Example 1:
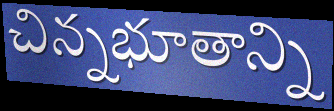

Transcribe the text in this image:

చిన్నభూతాన్ని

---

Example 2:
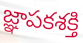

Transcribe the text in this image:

జ్ఞాపకశక్తి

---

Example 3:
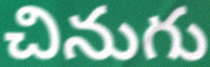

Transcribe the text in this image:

చినుగు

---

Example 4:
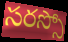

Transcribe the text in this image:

సరస్సో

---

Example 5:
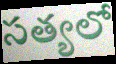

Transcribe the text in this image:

సత్యలో